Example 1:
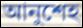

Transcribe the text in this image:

আনুশেহ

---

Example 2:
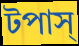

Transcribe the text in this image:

টপাস্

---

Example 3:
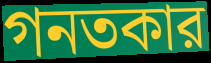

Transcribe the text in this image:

গনতকার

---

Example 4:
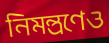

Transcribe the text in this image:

নিমন্ত্রণেও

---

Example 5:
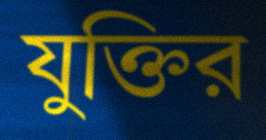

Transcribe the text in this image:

যুক্তির